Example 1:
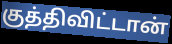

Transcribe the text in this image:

குத்திவிட்டான்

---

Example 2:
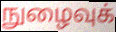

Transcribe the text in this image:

நுழைவுக்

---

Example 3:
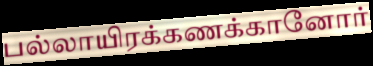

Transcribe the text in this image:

பல்லாயிரக்கணக்கானோர்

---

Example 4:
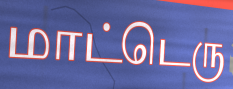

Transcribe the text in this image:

மாட்டெரு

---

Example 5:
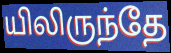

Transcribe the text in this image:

யிலிருந்தே